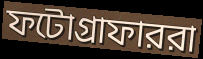
ফটোগ্রাফাররা